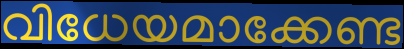
വിധേയമാക്കേണ്ട